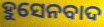
ହୁସେନବାଦ